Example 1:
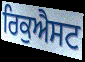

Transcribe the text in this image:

ਰਿਕੁਐਸਟ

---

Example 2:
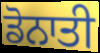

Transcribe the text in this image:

ਡੋਨਾਤੀ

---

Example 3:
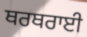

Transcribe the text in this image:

ਥਰਥਰਾਈ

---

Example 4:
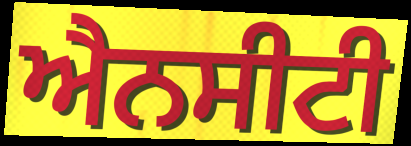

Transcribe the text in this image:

ਐਨਸੀਟੀ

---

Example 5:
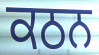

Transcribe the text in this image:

ਕਠਨ